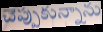
చెప్పుకున్నాను